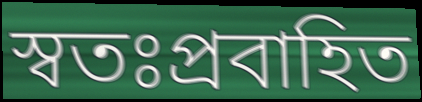
স্বতঃপ্রবাহিত